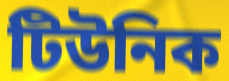
টিউনিক